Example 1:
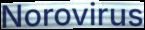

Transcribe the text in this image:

Norovirus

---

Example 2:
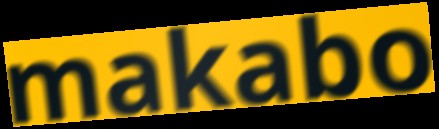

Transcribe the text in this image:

makabo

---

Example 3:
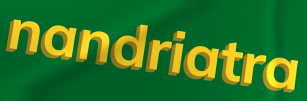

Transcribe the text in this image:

nandriatra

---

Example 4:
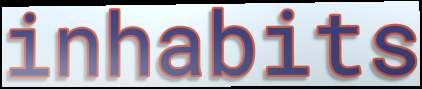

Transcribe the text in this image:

inhabits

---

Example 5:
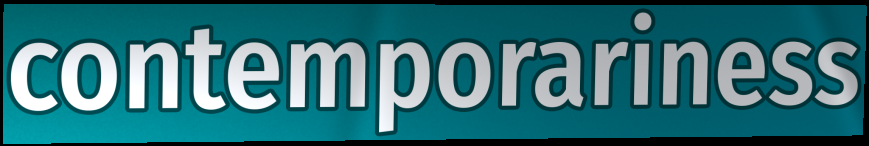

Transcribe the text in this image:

contemporariness